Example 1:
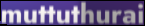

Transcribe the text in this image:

muttuthurai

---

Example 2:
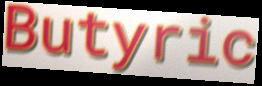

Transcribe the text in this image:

Butyric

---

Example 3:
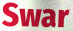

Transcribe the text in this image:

Swar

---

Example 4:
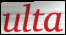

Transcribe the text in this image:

ulta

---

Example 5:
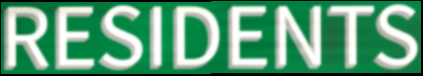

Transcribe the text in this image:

RESIDENTS